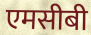
एमसीबी